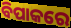
ବିପାକରେ